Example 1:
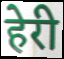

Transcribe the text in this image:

हेरी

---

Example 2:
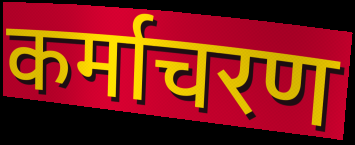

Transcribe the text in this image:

कर्माचरण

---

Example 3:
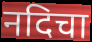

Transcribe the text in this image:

नदिचा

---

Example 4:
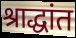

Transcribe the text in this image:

श्राद्धांत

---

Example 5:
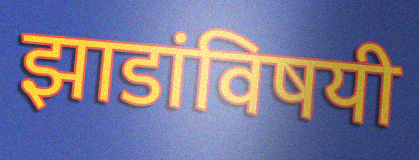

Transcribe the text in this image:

झाडांविषयी